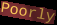
Poorly